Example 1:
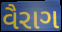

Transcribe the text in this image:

વૈરાગ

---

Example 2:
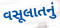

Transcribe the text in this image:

વસૂલાતનું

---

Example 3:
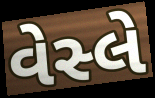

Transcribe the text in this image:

વેસ્લે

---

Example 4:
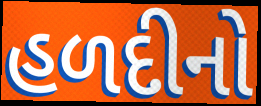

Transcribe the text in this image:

હળદીનો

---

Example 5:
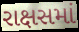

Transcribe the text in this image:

રાક્ષસમાં